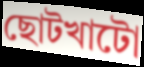
ছোটখাটো